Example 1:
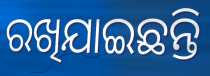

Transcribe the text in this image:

ରଖିଯାଇଛନ୍ତି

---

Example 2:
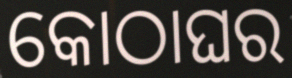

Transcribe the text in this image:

କୋଠାଘର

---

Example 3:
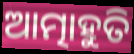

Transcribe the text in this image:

ଆତ୍ମାହୁତି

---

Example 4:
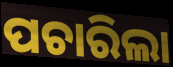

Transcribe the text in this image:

ପଚାରିଲା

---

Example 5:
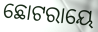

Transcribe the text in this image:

ଛୋଟରାୟେ